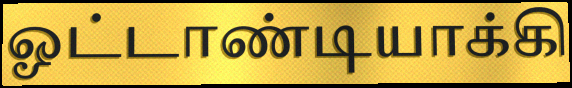
ஓட்டாண்டியாக்கி